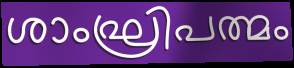
ശാംഘ്രിപത്മം